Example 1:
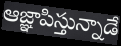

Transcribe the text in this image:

ఆజ్ఞాపిస్తున్నాడే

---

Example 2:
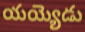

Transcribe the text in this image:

యయ్యెడు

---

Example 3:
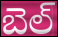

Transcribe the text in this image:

బెల్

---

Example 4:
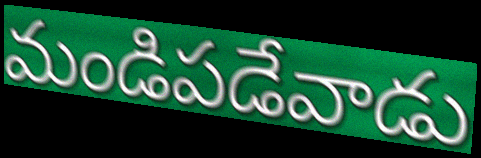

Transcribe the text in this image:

మండిపడేవాడు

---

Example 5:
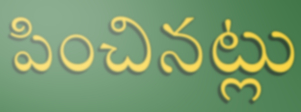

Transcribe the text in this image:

పించినట్లు